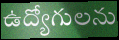
ఉద్యోగులను